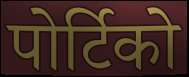
पोर्टिको